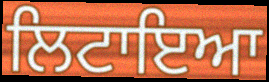
ਲਿਟਾਇਆ